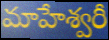
మాహేశ్వరీ